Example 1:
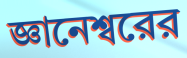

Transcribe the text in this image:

জ্ঞানেশ্বরের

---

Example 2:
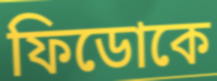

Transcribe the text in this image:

ফিডোকে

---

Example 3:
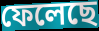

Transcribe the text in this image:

ফেলেছে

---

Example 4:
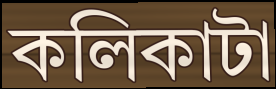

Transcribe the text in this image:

কলিকাটা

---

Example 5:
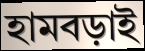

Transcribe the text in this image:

হামবড়াই